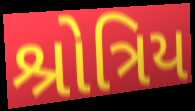
શ્રોત્રિય